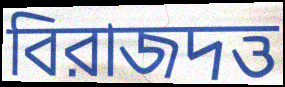
বিরাজদত্ত